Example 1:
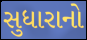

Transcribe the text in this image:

સુધારાનો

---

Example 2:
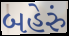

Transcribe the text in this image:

બહેરું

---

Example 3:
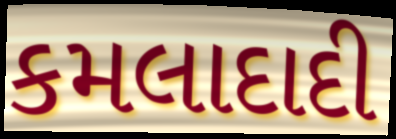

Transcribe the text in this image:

કમલાદાદી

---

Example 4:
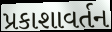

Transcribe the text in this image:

પ્રકાશાવર્તન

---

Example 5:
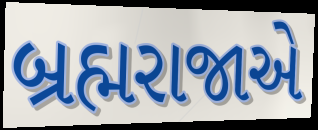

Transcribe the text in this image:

બ્રહ્મરાજાએ